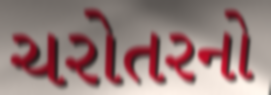
ચરોતરનો